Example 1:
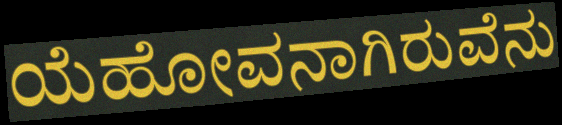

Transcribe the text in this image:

ಯೆಹೋವನಾಗಿರುವೆನು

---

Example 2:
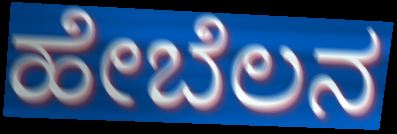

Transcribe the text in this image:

ಹೇಬೆಲನ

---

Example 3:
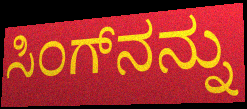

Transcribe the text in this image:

ಸಿಂಗ್‌ನನ್ನು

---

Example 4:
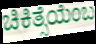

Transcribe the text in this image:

ಚಿಕಿತ್ಸೆಯೆಂಬ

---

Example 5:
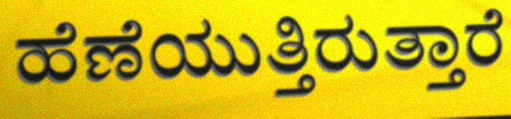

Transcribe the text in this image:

ಹೆಣೆಯುತ್ತಿರುತ್ತಾರೆ